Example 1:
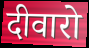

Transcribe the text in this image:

दीवारो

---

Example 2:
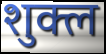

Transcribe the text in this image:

शुक्ल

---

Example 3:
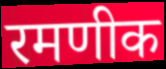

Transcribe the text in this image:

रमणीक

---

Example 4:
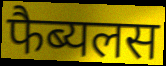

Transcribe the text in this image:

फैब्यलस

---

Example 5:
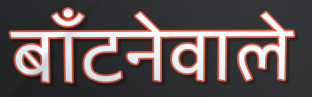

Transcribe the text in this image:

बाँटनेवाले